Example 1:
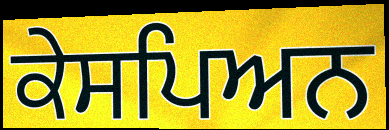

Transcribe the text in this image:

ਕੇਸਪਿਅਨ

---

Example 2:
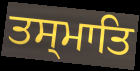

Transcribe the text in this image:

ਤਸ੍ਮਾਤਿ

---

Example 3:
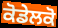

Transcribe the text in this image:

ਕੋਡੇਲਕੋ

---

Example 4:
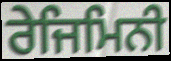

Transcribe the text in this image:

ਰੇਜਿਮਿਨੀ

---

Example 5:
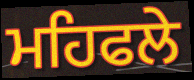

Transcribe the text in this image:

ਮਹਿਫਲੇ